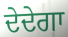
ਦੇਦੇਗਾ